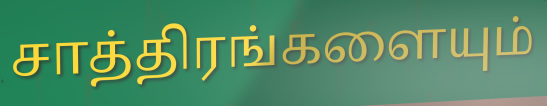
சாத்திரங்களையும்